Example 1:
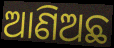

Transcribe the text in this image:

ଆଣିଅଛ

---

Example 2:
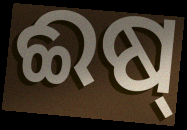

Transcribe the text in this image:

ଈଷ୍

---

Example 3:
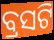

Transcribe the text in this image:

ବ୍ରସଟି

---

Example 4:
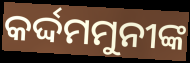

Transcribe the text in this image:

କର୍ଦ୍ଦମମୁନୀଙ୍କ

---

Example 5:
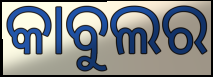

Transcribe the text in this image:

କାବୁଲର